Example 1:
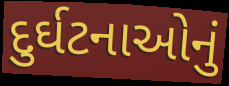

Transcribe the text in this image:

દુર્ઘટનાઓનું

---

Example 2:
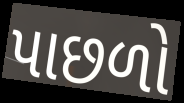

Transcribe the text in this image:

પાછળો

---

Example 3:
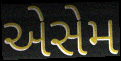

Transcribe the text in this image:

એસેમ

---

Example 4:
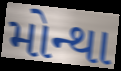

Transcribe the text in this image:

મોન્થા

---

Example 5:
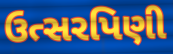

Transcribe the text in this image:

ઉત્સરપિણી